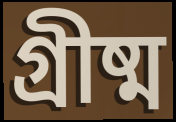
গ্রীষ্ম